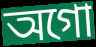
অগো